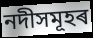
নদীসমূহৰ